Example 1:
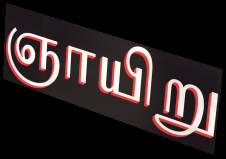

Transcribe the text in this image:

ஞாயிறு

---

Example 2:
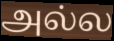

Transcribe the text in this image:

அல்ல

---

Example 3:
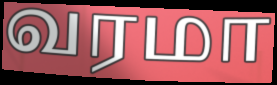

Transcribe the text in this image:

வரமா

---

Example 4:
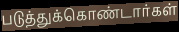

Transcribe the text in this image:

படுத்துக்கொண்டார்கள்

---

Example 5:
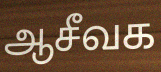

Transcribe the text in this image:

ஆசீவக